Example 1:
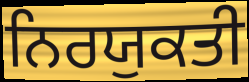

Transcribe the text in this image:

ਨਿਰਯੁਕਤੀ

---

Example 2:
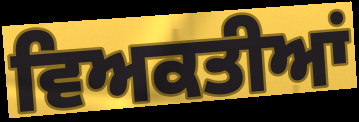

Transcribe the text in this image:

ਵਿਅਕਤੀਆਂ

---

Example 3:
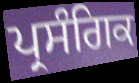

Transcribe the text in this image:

ਪ੍ਰਸੰਗਿਕ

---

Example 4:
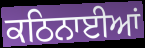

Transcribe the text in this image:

ਕਠਿਨਾਈਆਂ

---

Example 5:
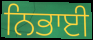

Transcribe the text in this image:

ਨਿਭਾਈ